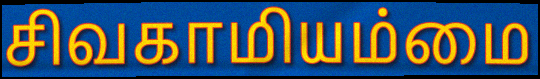
சிவகாமியம்மை